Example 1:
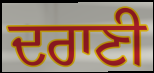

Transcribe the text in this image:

ਦਰਾਣੀ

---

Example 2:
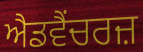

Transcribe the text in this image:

ਐਡਵੈਂਚਰਜ਼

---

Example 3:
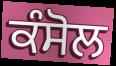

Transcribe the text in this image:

ਕੰਸੋਲ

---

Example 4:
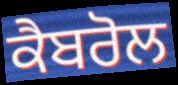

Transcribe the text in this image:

ਕੈਬਰੋਲ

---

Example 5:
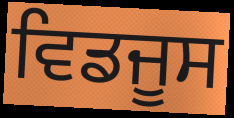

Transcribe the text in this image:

ਵਿਡਜੂਸ